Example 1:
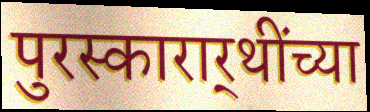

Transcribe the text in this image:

पुरस्कारार्थींच्या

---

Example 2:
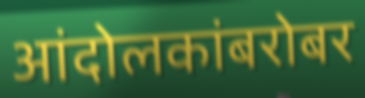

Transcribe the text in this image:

आंदोलकांबरोबर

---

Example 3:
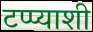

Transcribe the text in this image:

टप्प्याशी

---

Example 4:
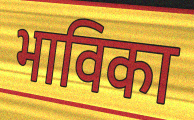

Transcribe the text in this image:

भाविका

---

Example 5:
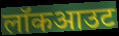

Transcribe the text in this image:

लॉकआउट